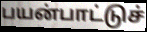
பயன்பாட்டுச்